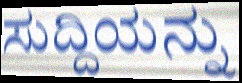
ಸುದ್ದಿಯನ್ನು